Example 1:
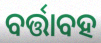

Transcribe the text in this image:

ବର୍ତ୍ତାବହ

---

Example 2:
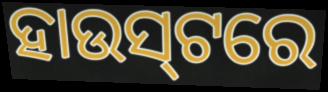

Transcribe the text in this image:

ହାଉସ୍‌ଟରେ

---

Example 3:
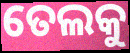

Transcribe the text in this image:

ତେଲକୁ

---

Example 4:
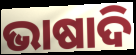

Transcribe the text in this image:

ଭାଷାଦି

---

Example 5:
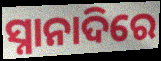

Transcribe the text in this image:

ସ୍ନାନାଦିରେ